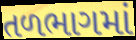
તળભાગમાં